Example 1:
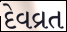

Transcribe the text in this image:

દેવવ્રત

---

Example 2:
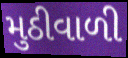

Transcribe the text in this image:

મુઠીવાળી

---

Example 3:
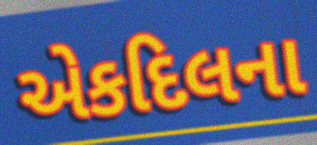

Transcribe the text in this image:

એકદિલના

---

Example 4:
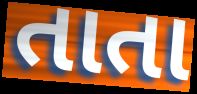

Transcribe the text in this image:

તાતા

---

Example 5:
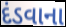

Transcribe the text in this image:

દંડવાના